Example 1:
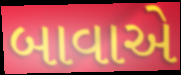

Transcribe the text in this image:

બાવાએ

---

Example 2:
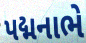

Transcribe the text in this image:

પદ્મનાભે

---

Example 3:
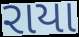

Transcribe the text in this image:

રાયા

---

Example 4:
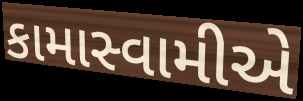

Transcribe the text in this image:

કામાસ્વામીએ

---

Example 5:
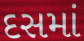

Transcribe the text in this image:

દસમાં